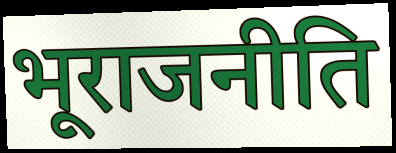
भूराजनीति